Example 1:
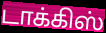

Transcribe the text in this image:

டாக்கிஸ்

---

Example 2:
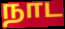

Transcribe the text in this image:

நாட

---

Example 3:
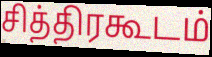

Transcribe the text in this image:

சித்திரகூடம்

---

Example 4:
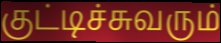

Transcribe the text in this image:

குட்டிச்சுவரும்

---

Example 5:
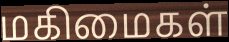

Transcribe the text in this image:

மகிமைகள்